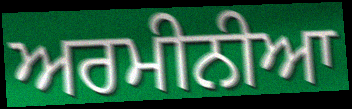
ਅਰਮੀਨੀਆ